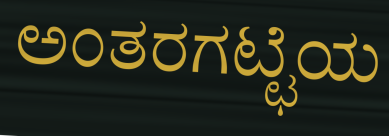
ಅಂತರಗಟ್ಟೆಯ